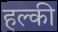
हल्‍की